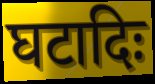
घटादिः